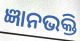
ଜ୍ଞାନଭକ୍ତି